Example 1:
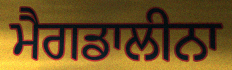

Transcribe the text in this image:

ਮੈਗਡਾਲੀਨਾ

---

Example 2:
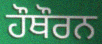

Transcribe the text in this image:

ਹੌਥੌਰਨ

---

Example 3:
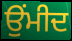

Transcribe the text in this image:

ਉਂਮੀਦ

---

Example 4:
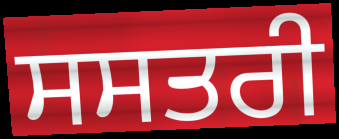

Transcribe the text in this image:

ਸਸਤਰੀ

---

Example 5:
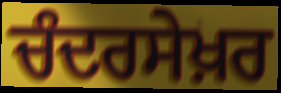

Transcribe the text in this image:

ਚੰਦਰਸੇਖ਼ਰ